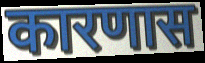
कारणास